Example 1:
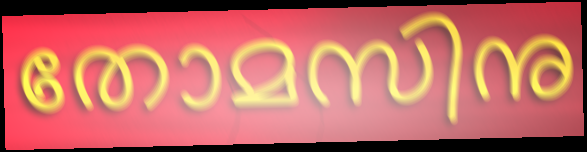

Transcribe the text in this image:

തോമസിനു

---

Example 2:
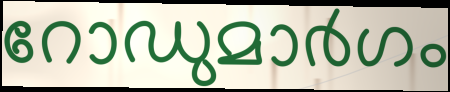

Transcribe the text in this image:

റോഡുമാർഗം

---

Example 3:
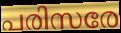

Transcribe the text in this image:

പരിസരേ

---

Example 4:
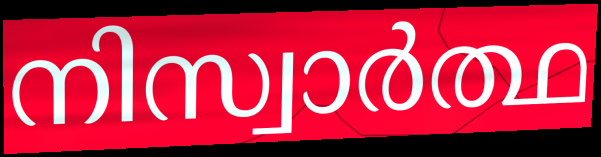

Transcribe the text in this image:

നിസ്വാർത്ഥ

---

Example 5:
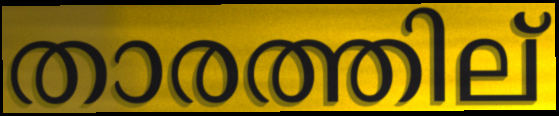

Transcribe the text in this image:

താരത്തില്